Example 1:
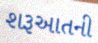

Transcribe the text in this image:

શરૂઆતની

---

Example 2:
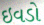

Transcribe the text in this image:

ઇવડો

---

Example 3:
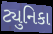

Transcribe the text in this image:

ટ્યુનિકા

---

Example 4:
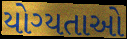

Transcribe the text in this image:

યોગ્યતાઓ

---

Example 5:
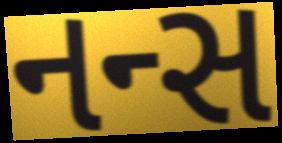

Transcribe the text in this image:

નન્સ